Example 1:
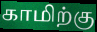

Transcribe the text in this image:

காமிற்கு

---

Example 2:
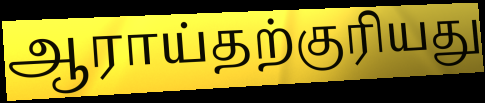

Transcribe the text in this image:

ஆராய்தற்குரியது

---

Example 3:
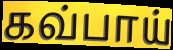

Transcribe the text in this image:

கவ்பாய்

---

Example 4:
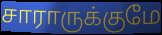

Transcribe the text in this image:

சாராருக்குமே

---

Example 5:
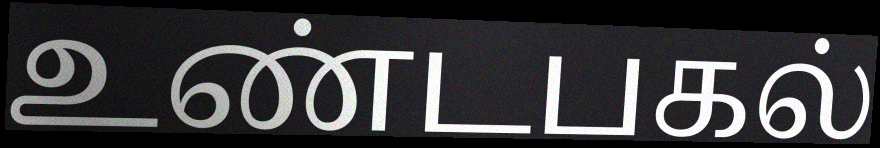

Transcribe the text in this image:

உண்டபகல்